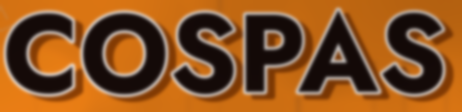
COSPAS